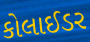
કોલાઈડર